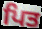
ਪਿਤ